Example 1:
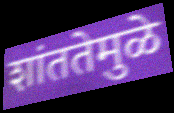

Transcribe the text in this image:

शांततेमुळे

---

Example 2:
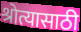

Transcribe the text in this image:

श्रोत्यासाठी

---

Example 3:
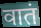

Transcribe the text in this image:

वातं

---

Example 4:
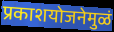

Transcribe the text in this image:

प्रकाशयोजनेमुळं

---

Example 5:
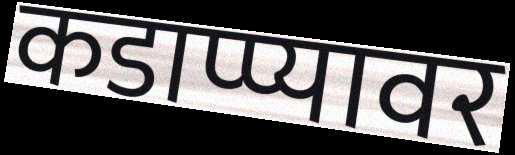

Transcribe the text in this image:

कडाप्प्यावर